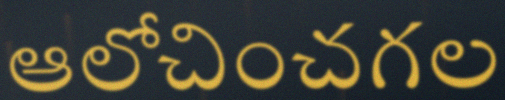
ఆలోచించగల